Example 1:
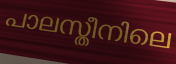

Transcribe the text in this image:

പാലസ്തീനിലെ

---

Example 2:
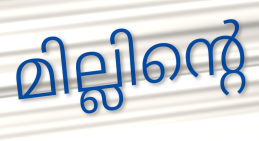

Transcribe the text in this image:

മില്ലിന്റെ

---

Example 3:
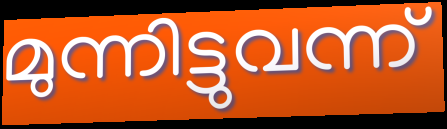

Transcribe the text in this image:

മുന്നിട്ടുവന്ന്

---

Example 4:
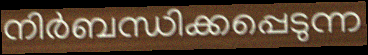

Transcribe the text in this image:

നിർബന്ധിക്കപ്പെടുന്ന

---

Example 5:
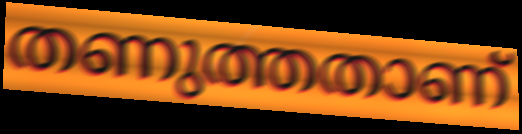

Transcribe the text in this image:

തണുത്തതാണ്